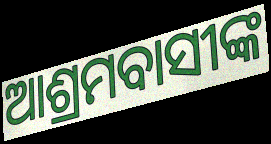
ଆଶ୍ରମବାସୀଙ୍କ